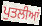
ਪੁਤਲੀਆਂ